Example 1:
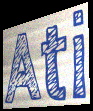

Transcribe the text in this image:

Ati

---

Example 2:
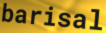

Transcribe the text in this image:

barisal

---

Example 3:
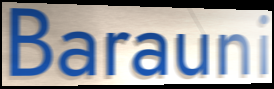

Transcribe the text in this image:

Barauni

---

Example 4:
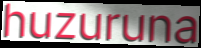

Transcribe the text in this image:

huzuruna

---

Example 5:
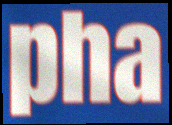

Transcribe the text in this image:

pha